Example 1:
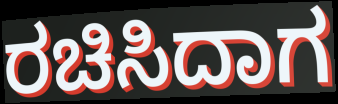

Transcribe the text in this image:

ರಚಿಸಿದಾಗ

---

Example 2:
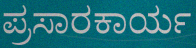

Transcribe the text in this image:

ಪ್ರಸಾರಕಾರ್ಯ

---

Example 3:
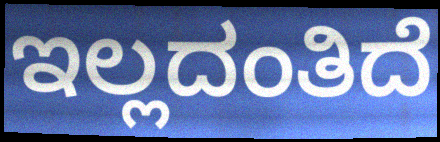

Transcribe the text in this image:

ಇಲ್ಲದಂತಿದೆ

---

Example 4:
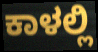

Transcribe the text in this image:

ಕಾಳಲ್ಲಿ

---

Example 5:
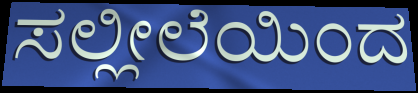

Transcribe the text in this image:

ಸಲ್ಲೀಲೆಯಿಂದ